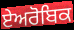
ਏਅਰੋਬਿਕ